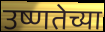
उष्णतेच्या